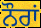
ਨੌਰਾਂ